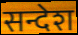
सन्देश